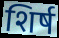
शिर्ष